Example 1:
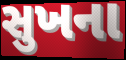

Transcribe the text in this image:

સુખના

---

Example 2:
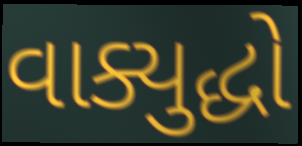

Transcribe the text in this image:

વાક્યુદ્ધો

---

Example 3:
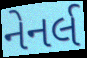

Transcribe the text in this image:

નેનર્લ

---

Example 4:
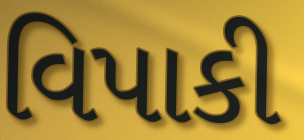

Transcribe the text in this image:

વિપાકી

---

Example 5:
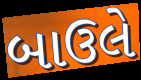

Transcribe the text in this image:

બાઉલે